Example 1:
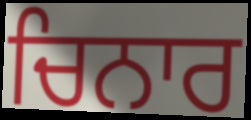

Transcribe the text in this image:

ਚਿਨਾਰ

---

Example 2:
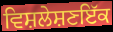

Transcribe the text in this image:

ਵਿਸ਼ਲੇਸ਼ਣਇੱਕ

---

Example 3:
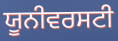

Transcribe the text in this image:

ਯੂਨੀਵਰਸਟੀ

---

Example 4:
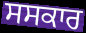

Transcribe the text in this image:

ਸਸਕਾਰ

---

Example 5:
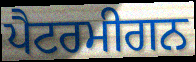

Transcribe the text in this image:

ਪੈਟਰਮੀਗਨ